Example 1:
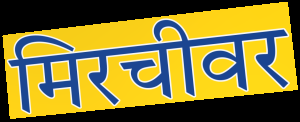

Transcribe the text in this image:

मिरचीवर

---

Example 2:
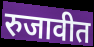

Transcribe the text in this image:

रुजावीत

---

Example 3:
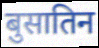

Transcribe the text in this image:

बुसातिन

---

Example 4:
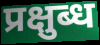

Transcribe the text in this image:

प्रक्षुब्ध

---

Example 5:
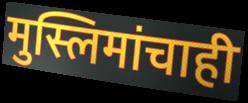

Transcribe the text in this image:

मुस्लिमांचाही